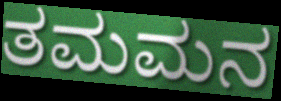
ತಮಮನ